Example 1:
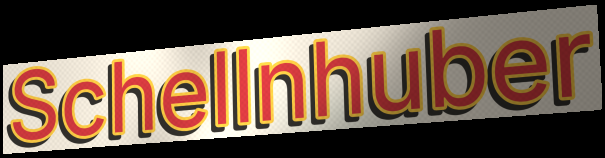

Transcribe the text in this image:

Schellnhuber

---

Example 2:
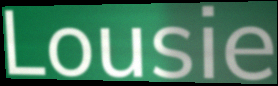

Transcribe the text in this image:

Lousie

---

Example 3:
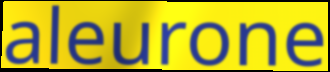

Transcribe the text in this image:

aleurone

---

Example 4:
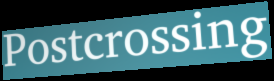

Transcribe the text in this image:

Postcrossing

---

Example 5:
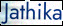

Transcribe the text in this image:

Jathika